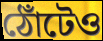
ঠোঁটেও